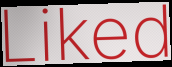
Liked